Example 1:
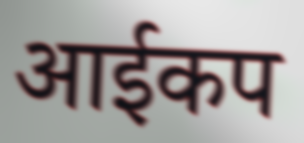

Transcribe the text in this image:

आईकप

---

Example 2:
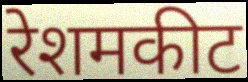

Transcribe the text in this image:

रेशमकीट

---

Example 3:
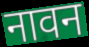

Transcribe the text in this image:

नावन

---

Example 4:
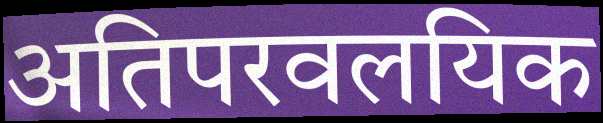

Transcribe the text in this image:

अतिपरवलयिक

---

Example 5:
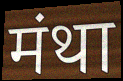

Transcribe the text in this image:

मंथा